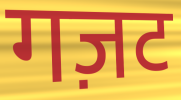
गज़ट